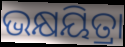
ଭକ୍ଷୟିତ୍ରା